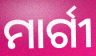
ମାର୍ଗୀ